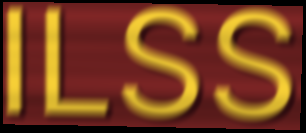
ILSS